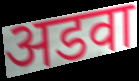
अडवा